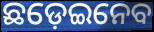
ଛଡ଼େଇନେବ